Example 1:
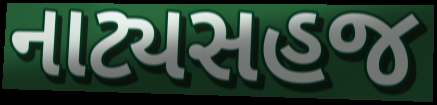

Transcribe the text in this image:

નાટ્યસહજ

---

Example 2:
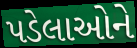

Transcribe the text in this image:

પડેલાઓને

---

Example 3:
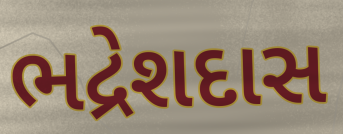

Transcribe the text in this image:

ભદ્રેશદાસ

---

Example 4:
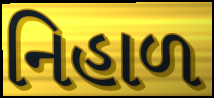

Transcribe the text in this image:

નિહાળ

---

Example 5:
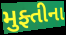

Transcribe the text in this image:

મુફ્તીના